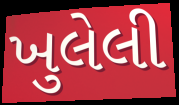
ખુલેલી